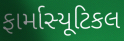
ફાર્માસ્યૂટિકલ